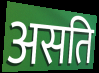
असति